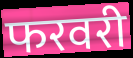
फरवरी